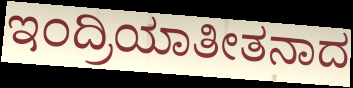
ಇಂದ್ರಿಯಾತೀತನಾದ